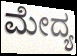
ಮೇದ್ಯ